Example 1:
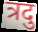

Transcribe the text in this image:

त्रदु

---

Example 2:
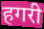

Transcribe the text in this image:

हगरी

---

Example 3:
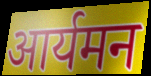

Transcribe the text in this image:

आर्यमन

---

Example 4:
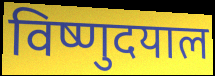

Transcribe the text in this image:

विष्णुदयाल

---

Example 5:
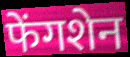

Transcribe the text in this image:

फेंगशेन